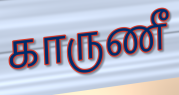
காருணீ